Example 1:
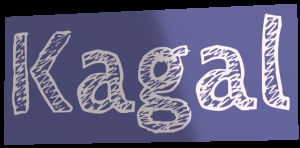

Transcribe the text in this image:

Kagal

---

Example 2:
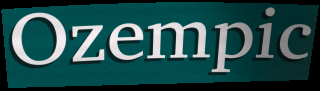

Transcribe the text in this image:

Ozempic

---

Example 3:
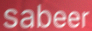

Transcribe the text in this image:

sabeer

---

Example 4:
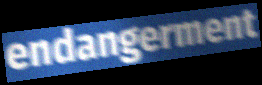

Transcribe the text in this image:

endangerment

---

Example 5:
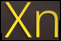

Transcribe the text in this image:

Xn